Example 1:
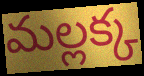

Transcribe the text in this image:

మల్లక్క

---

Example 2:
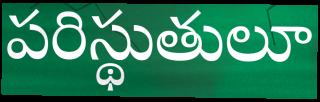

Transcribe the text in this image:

పరిస్థుతులూ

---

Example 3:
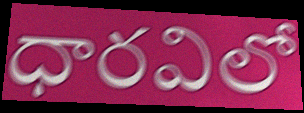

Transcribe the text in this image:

ధారవిలో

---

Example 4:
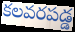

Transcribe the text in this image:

కలవరపడ్డ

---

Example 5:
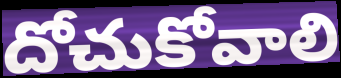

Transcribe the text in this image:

దోచుకోవాలి